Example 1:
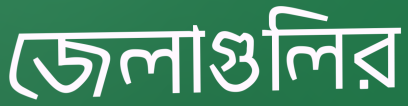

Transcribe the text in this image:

জেলাগুলির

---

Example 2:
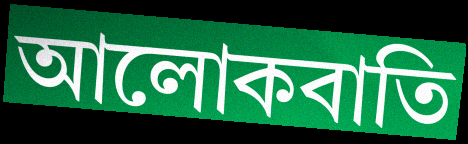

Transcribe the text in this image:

আলোকবাতি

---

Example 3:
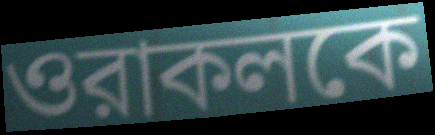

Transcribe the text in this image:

ওরাকলকে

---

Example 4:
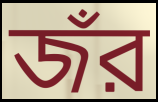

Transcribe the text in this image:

জঁর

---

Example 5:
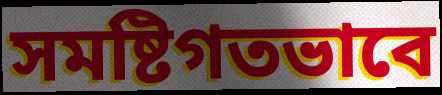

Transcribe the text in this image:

সমষ্টিগতভাবে